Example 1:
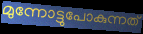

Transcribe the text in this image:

മുന്നോട്ടുപോകുന്നത്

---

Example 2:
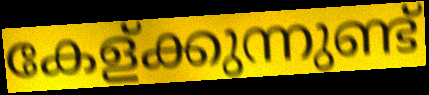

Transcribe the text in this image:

കേള്ക്കുന്നുണ്ട്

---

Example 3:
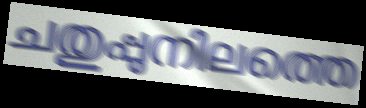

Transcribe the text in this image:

ചതുപ്പുനിലത്തെ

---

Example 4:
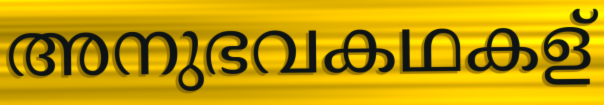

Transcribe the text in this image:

അനുഭവകഥകള്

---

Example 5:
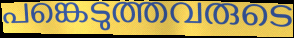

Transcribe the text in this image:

പങ്കെടുത്തവരുടെ